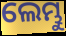
ଲେମ୍ଭୁ